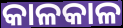
କାଳକାଳ